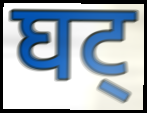
घट्